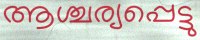
ആശ്ചര്യപ്പെട്ടു